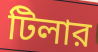
টিলার